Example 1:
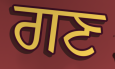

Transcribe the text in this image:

ਗਣ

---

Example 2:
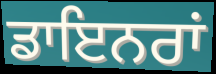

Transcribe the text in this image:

ਡਾਇਨਰਾਂ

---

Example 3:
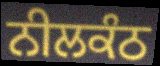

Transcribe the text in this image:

ਨੀਲਕੰਠ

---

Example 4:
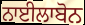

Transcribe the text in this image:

ਨਾਈਲਾਬੋਨ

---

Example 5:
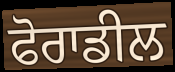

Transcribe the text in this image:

ਫੋਰਾਡੀਲ